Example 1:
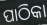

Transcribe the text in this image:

ପାଠିକା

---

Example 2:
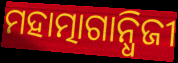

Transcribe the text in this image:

ମହାତ୍ମାଗାନ୍ଧିଜୀ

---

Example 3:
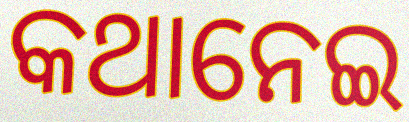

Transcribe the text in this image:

କଥାନେଇ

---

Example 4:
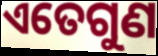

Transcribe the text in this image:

ଏତେଗୁଣ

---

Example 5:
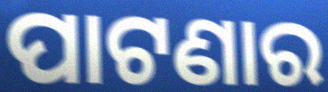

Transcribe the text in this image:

ପାଟଣାର